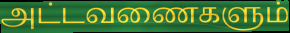
அட்டவணைகளும்